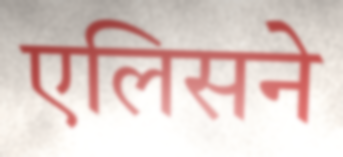
एलिसने